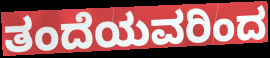
ತಂದೆಯವರಿಂದ